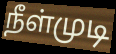
நீள்முடி